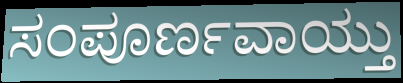
ಸಂಪೂರ್ಣವಾಯ್ತು